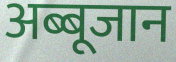
अब्बूजान